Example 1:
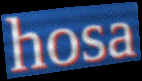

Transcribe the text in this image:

hosa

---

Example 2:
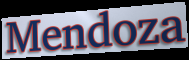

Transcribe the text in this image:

Mendoza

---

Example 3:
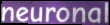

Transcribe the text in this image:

neuronal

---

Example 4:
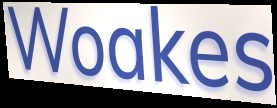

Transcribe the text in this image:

Woakes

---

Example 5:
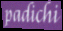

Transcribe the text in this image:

padichi